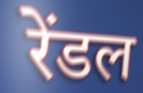
रेंडल